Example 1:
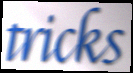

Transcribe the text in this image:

tricks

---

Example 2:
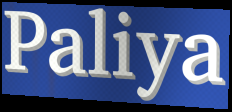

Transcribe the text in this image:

Paliya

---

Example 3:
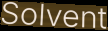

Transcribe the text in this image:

Solvent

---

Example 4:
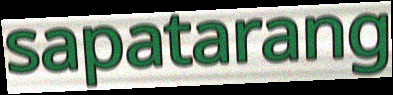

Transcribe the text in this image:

sapatarang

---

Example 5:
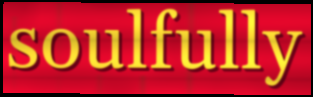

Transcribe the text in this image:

soulfully